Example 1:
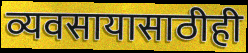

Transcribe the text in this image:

व्यवसायासाठीही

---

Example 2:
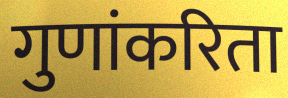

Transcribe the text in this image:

गुणांकरिता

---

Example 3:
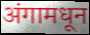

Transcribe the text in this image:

अंगामधून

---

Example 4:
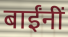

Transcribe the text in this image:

बाईंनीं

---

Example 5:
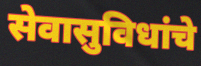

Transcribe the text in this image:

सेवासुविधांचे